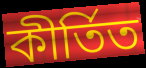
কীর্তিত